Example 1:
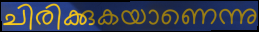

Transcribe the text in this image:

ചിരിക്കുകയാണെന്നു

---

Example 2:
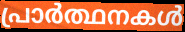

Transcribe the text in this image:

പ്രാർത്ഥനകൾ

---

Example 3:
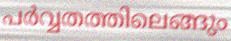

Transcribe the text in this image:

പർവ്വതത്തിലെങ്ങും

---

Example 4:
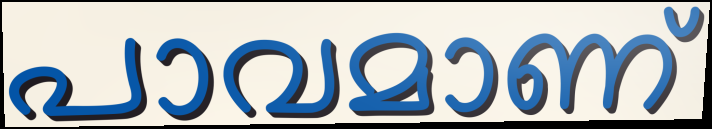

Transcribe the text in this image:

പാവമാണ്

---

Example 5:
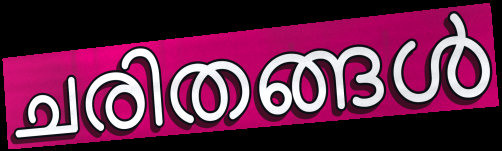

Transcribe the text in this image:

ചരിതങ്ങൾ